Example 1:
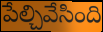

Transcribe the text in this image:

పేల్చివేసింది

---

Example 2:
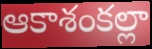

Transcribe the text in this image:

ఆకాశంకల్లా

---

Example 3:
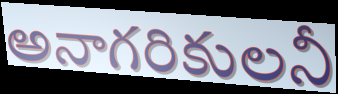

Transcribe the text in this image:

అనాగరికులనీ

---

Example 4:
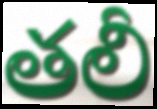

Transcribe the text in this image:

తలీ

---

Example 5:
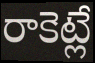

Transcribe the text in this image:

రాకెట్లే